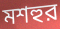
মশহুর